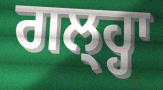
ਗਲ੍ਹ੍ਹਾ